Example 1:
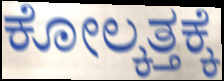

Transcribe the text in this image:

ಕೋಲ್ಕತ್ತಕ್ಕೆ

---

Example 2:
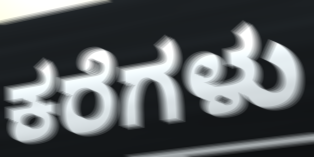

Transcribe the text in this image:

ಕರೆಗಳು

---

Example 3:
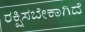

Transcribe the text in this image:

ರಕ್ಷಿಸಬೇಕಾಗಿದೆ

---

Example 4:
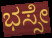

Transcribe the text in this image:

ಭಸ್ಸೇ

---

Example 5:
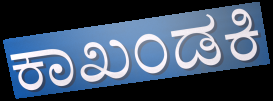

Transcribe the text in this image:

ಕಾಖಂಡಕಿ